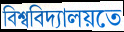
বিশ্ববিদ্যালয়তে